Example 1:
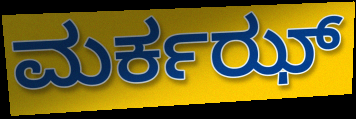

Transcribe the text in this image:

ಮರ್ಕಝ್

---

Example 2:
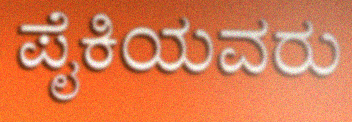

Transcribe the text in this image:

ಪೈಕಿಯವರು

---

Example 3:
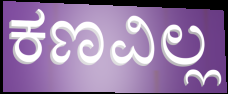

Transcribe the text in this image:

ಕಣವಿಲ್ಲ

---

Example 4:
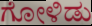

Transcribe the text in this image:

ಗೋಳಿಡು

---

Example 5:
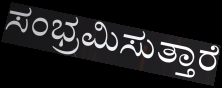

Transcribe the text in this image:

ಸಂಭ್ರಮಿಸುತ್ತಾರೆ